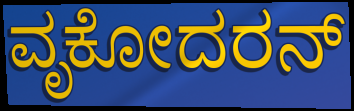
ವೃಕೋದರನ್